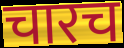
चारच